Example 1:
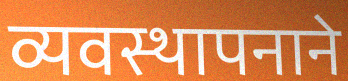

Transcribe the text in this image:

व्यवस्थापनाने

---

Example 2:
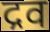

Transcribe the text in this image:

द्रव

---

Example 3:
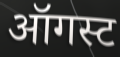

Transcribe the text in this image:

ऑगस्ट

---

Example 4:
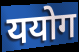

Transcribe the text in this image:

ययोग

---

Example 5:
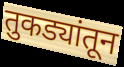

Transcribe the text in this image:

तुकड्यांतून